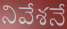
నివేశనే